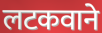
लटकवाने